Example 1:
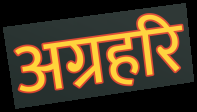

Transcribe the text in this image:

अग्रहरि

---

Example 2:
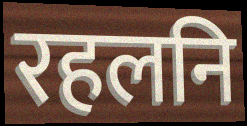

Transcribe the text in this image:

रहलनि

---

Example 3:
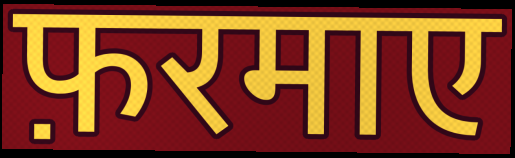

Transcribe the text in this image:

फ़रमाए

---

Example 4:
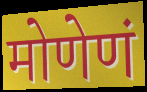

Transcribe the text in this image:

मोणेणं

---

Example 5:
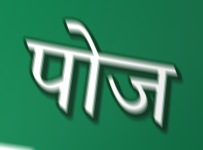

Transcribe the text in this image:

पोज